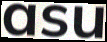
asu